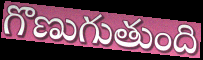
గొణుగుతుంది